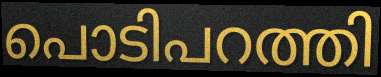
പൊടിപറത്തി